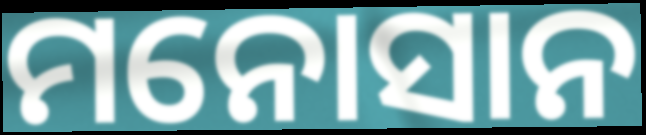
ମନୋସାନ